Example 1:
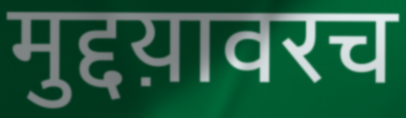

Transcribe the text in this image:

मुद्दय़ावरच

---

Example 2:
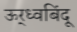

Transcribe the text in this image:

ऊर्ध्वबिंदू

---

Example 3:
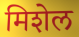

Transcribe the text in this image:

मिशेल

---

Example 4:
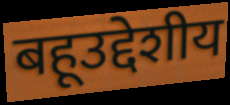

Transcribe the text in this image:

बहूउद्देशीय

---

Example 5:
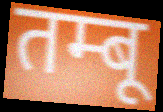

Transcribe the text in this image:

तम्बू